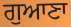
ਗੁਆਣਾ